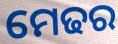
ମେଢର